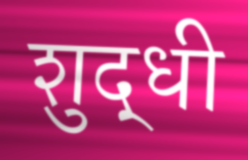
शुद्धी